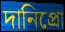
দানিপ্রো